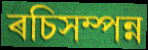
ৰচিসম্পন্ন